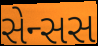
સેન્સસ